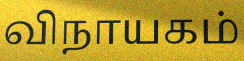
விநாயகம்